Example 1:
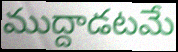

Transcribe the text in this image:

ముద్దాడటమే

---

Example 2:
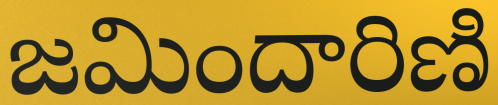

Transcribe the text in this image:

జమిందారిణి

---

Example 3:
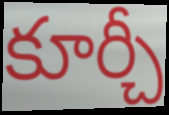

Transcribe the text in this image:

కూర్చీ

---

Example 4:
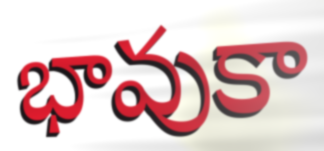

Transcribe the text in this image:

భావుకా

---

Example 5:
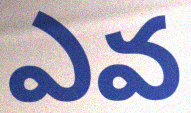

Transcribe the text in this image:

ఎవ